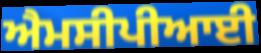
ਐਮਸੀਪੀਆਈ